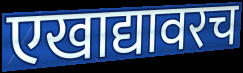
एखाद्यावरच